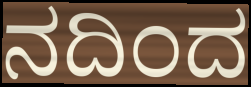
ನದಿಂದ